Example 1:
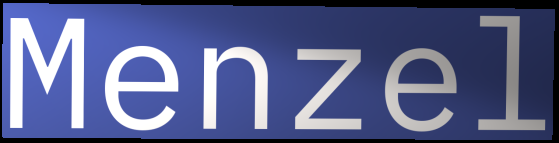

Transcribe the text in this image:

Menzel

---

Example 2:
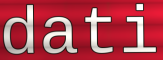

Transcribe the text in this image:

dati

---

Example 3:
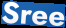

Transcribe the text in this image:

Sree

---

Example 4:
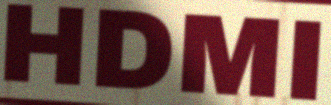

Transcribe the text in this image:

HDMI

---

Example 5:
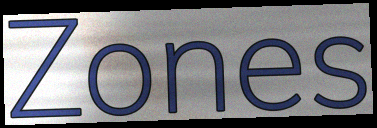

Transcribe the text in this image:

Zones